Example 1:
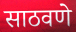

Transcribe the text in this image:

साठवणे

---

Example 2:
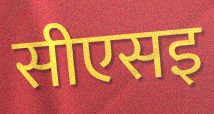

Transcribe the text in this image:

सीएसइ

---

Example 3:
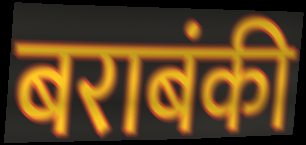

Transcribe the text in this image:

बराबंकी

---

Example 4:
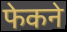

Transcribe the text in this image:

फेकने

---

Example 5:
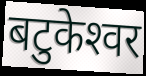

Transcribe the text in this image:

बटुकेश्‍वर